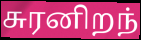
சுரனிறந்